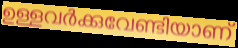
ഉള്ളവർക്കുവേണ്ടിയാണ്